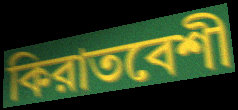
কিরাতবেশী